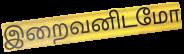
இறைவனிடமோ